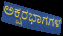
ಅಕ್ಷರಭಾಗಗಳ